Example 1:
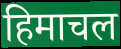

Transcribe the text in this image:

हिमाचल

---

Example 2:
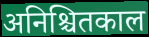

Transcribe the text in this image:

अनिश्चितकाल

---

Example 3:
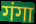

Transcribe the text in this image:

गंगा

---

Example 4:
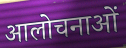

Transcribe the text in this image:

आलोचनाओं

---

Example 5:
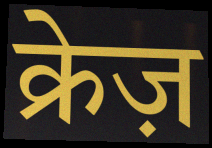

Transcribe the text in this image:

क्रेज़